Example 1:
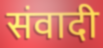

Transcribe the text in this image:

संवादी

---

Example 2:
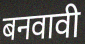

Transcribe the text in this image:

बनवावी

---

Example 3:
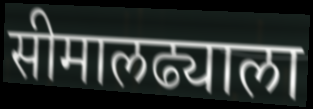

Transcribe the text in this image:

सीमालढ्याला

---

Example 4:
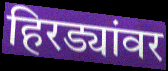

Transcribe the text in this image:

हिरड्यांवर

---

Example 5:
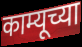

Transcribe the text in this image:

काम्यूच्या